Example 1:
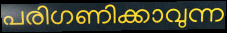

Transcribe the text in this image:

പരിഗണിക്കാവുന്ന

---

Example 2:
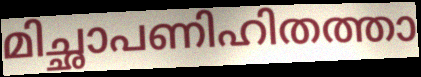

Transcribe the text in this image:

മിച്ഛാപണിഹിതത്താ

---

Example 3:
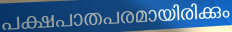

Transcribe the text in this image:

പക്ഷപാതപരമായിരിക്കും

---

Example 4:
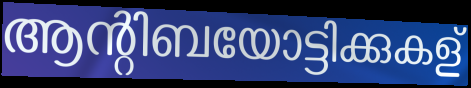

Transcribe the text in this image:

ആന്റിബയോട്ടിക്കുകള്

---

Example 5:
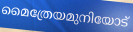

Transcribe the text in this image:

മൈത്രേയമുനിയോട്